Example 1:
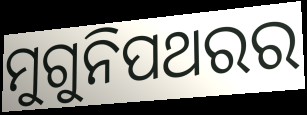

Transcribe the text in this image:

ମୁଗୁନିପଥରର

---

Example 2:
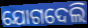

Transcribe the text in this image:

ଯୋଗଦେଲି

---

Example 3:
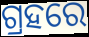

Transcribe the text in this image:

ଗ୍ରହରେ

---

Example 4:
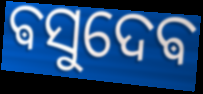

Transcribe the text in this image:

ଵସୁଦେଵ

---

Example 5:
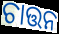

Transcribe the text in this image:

ଚାତ୍ତନ